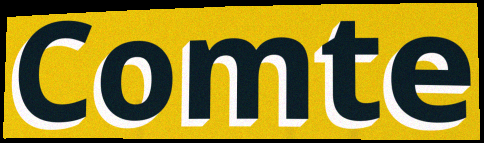
Comte